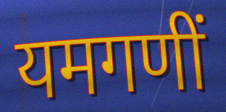
यमगणीं